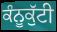
ਕੰਨੂਕੁੱਟੀ